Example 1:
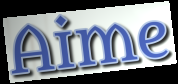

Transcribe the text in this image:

Aime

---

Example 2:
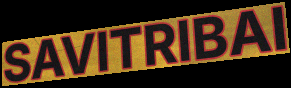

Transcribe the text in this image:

SAVITRIBAI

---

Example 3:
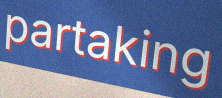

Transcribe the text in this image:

partaking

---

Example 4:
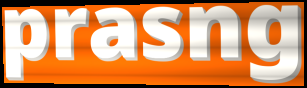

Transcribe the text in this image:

prasng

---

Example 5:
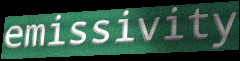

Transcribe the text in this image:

emissivity